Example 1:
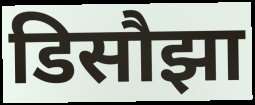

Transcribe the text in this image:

डिसौझा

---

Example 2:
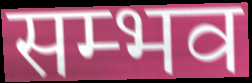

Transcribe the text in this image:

सम्भव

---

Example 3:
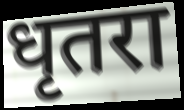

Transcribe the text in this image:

धृतरा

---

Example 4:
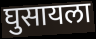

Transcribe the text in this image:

घुसायला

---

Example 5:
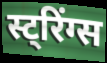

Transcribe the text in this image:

स्ट्रिंग्स